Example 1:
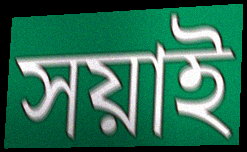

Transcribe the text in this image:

সয়াই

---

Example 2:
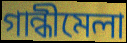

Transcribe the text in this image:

গান্ধীমেলা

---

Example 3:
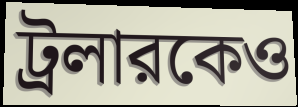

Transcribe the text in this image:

ট্রলারকেও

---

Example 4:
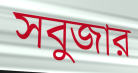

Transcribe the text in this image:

সবুজার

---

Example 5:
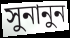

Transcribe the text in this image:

সুনানুন